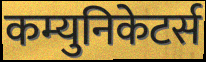
कम्युनिकेटर्स